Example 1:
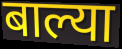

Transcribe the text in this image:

बाल्या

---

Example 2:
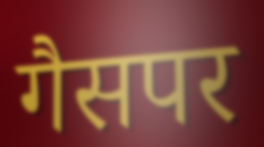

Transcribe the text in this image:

गैसपर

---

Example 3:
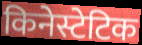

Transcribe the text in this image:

किनेस्टेटिक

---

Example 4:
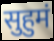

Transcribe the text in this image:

सुहुमं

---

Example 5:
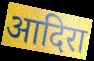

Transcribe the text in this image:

आदिरा